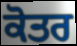
ਕੋਤਰ